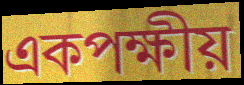
একপক্ষীয়